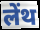
लेंथ